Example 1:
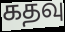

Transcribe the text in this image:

கதவு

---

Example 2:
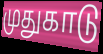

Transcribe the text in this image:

முதுகாடு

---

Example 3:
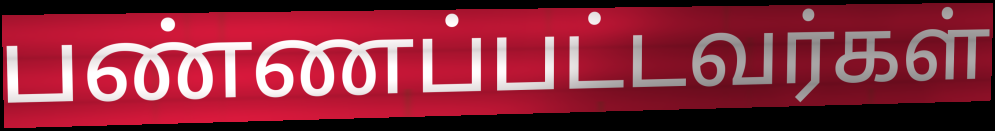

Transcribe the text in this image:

பண்ணப்பட்டவர்கள்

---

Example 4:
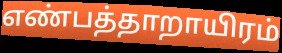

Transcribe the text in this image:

எண்பத்தாறாயிரம்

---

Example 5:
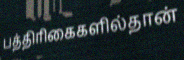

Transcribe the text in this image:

பத்திரிகைகளில்தான்